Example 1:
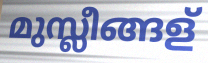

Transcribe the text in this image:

മുസ്ലീങ്ങള്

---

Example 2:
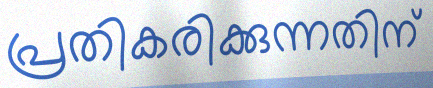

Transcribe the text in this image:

പ്രതികരിക്കുന്നതിന്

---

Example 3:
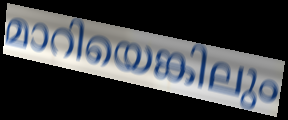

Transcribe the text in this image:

മാറിയെങ്കിലും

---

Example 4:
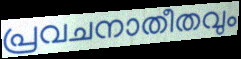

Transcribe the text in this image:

പ്രവചനാതീതവും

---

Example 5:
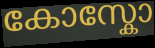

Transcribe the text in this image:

കോസ്കോ